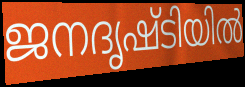
ജനദൃഷ്ടിയിൽ